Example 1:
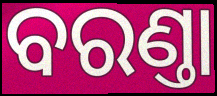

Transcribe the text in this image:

ବରଣ୍ତା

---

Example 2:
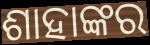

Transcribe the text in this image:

ଶାହାଙ୍କର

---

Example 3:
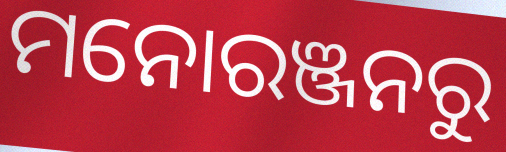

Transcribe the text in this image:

ମନୋରଞ୍ଜନରୁ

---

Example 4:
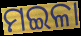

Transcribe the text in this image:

ମଇଳା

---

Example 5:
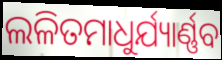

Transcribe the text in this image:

ଲଳିତମାଧୁର୍ଯ୍ୟାର୍ଣ୍ଣବ